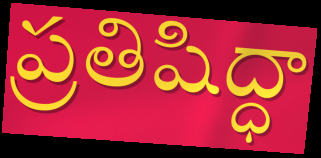
ప్రతిషిద్ధా